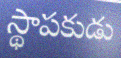
స్థాపకుడు